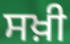
ਸਖ਼ੀ